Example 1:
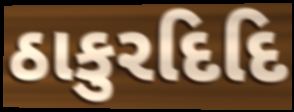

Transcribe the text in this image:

ઠાકુરદિદિ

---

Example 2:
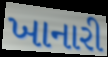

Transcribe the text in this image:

ખાનારી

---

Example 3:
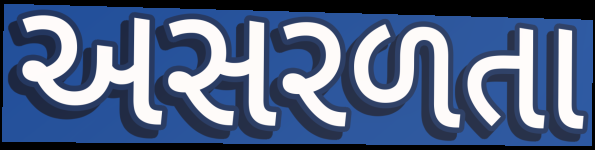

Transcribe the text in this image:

અસરળતા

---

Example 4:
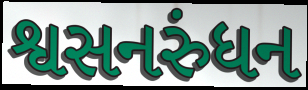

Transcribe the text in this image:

શ્વસનરુંધન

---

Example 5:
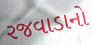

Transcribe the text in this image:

રજવાડાનો